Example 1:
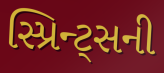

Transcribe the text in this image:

સ્પ્રિન્ટ્સની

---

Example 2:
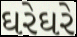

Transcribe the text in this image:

ઘરેઘરે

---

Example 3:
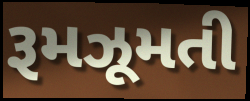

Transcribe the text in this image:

રૂમઝૂમતી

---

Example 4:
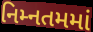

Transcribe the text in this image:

નિમ્નતમમાં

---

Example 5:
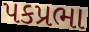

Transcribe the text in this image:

પકપ્રભા